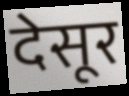
देसूर